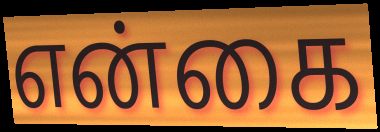
என்கை